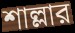
শাল্লার